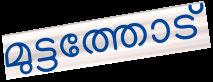
മുട്ടത്തോട്